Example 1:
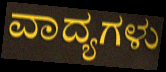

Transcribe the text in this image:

ವಾದ್ಯಗಳು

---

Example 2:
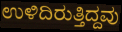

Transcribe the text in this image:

ಉಳಿದಿರುತ್ತಿದ್ದವು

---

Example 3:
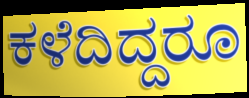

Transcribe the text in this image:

ಕಳೆದಿದ್ದರೂ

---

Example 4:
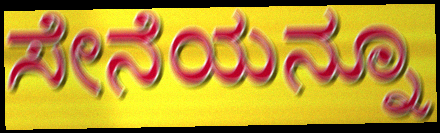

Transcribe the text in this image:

ಸೇನೆಯನ್ನೂ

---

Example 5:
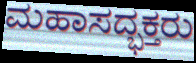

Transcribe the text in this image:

ಮಹಾಸದ್ಭಕ್ತರು